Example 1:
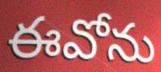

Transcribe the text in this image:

ఈవోను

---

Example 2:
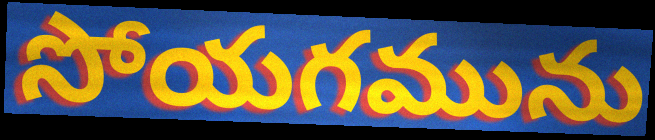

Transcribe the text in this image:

సోయగమును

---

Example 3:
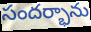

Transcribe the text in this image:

సందర్భాను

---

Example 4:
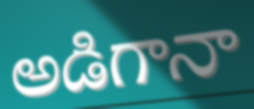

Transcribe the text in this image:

అడిగానా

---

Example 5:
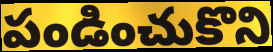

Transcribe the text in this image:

పండించుకొని